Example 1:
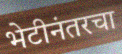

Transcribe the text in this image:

भेटीनंतरचा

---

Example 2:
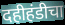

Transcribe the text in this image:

दहीहंडीचा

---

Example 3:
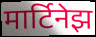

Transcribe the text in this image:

मार्टिनेझ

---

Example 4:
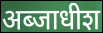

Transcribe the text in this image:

अब्जाधीश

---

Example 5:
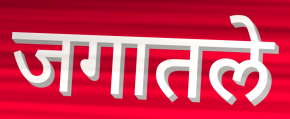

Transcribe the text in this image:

जगातले